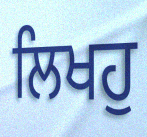
ਲਿਖਹੁ